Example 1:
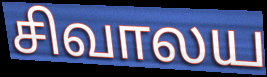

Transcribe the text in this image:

சிவாலய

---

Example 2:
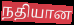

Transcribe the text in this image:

நதியான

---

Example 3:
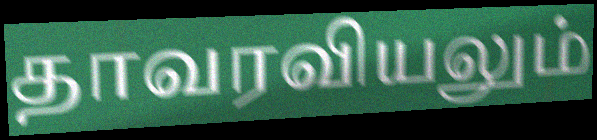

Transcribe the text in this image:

தாவரவியலும்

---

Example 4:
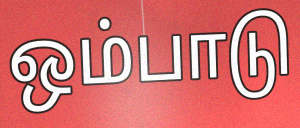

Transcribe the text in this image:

ஒம்பாடு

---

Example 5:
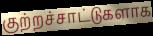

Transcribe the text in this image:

குற்றச்சாட்டுகளாக